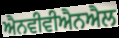
ਐਨਵੀਵੀਐਨਐਲ